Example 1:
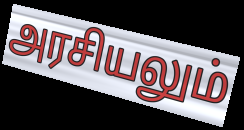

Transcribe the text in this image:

அரசியலும்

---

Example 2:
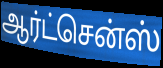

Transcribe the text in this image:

ஆர்ட்சென்ஸ்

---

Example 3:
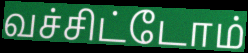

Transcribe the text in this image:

வச்சிட்டோம்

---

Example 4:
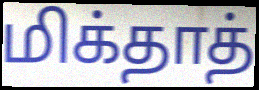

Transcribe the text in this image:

மிக்தாத்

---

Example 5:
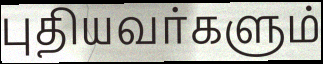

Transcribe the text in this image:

புதியவர்களும்